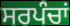
ਸਰਪੰਚਾਂ